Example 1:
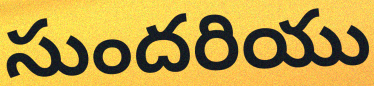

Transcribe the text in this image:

సుందరియు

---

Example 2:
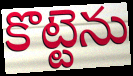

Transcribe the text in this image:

కొట్టెను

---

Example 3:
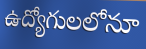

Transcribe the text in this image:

ఉద్యోగులలోనూ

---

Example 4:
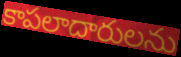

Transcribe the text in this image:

కాపలాదారులను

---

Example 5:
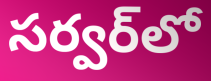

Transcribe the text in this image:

సర్వర్‌లో